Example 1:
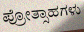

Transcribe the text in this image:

ಪ್ರೋತ್ಸಾಹಗಳು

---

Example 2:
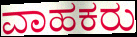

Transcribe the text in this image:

ವಾಹಕರು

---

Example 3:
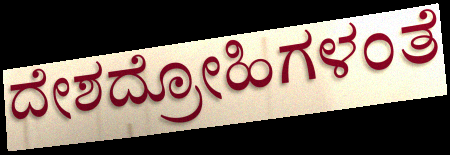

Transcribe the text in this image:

ದೇಶದ್ರೋಹಿಗಳಂತೆ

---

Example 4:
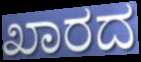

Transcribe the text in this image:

ಖಾರದ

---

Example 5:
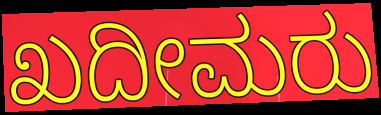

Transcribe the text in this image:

ಖದೀಮರು